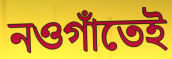
নওগাঁতেই